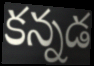
కన్నడ